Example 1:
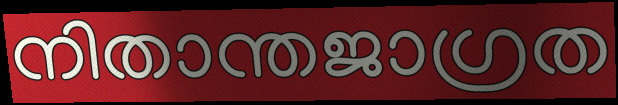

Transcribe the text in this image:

നിതാന്തജാഗ്രത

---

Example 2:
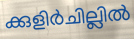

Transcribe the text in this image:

ക്കുളിർചില്ലിൽ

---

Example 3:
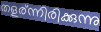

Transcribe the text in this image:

തളര്ന്നിരിക്കുന്നു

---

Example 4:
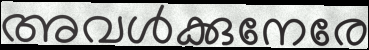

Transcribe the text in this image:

അവൾക്കുനേരേ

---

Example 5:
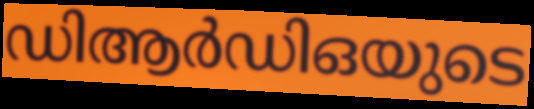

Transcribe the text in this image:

ഡിആർഡിഒയുടെ